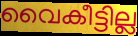
വൈകീട്ടില്ല